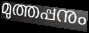
മുത്തപ്പനും